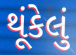
થૂંકેલું